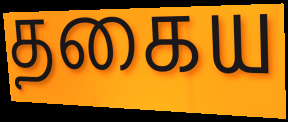
தகைய